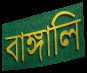
বাঙ্গালি